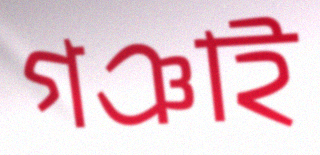
গঞাই